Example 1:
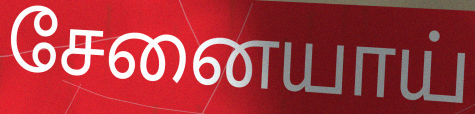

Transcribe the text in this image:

சேனையாய்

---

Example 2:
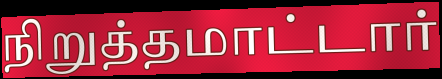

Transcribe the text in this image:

நிறுத்தமாட்டார்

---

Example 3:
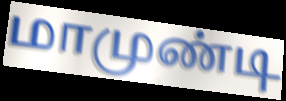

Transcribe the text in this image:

மாமுண்டி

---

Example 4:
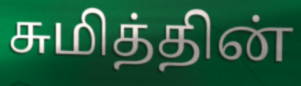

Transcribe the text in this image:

சுமித்தின்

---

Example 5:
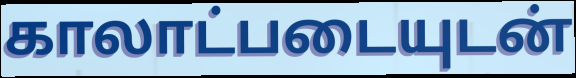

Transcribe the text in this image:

காலாட்படையுடன்